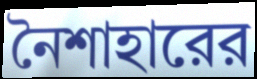
নৈশাহারের